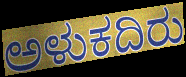
ಅಳುಕದಿರು